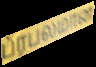
ப்ரபலமான